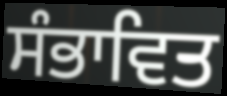
ਸੰਭਾਵਿਤ